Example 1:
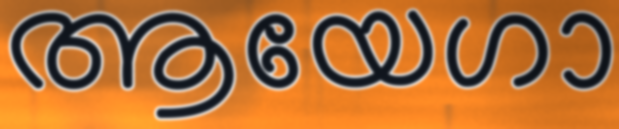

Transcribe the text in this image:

ആയേഗാ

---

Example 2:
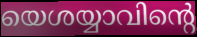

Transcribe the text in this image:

യെശയ്യാവിന്റെ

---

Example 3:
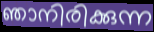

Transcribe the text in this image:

ഞാനിരിക്കുന്ന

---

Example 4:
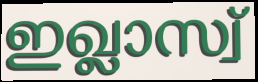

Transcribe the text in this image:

ഇഖ്ലാസ്വ്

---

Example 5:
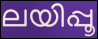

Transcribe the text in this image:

ലയിപ്പൂ